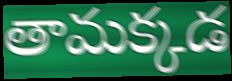
తామక్కడ